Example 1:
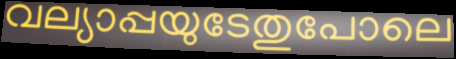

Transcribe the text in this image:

വല്യാപ്പയുടേതുപോലെ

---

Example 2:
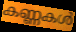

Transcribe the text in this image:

കണ്ണകൾ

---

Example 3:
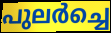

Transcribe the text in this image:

പുലർച്ചെ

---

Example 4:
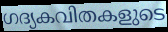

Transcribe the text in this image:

ഗദ്യകവിതകളുടെ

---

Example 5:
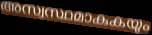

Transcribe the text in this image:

അസ്വസ്ഥമാകുകയും